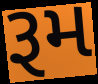
રૂમ